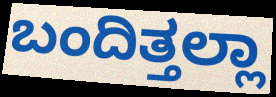
ಬಂದಿತ್ತಲ್ಲಾ